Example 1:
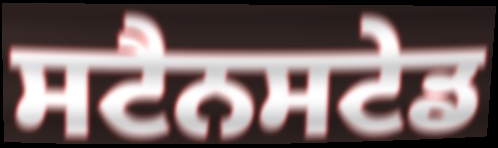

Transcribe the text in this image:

ਸਟੈਨਸਟੇਡ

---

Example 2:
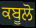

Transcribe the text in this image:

ਕਬੂਲੋ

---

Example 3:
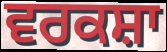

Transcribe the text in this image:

ਵਰਕਸ਼ਾ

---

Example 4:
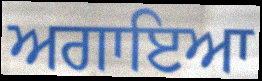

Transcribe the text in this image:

ਅਗਾਇਆ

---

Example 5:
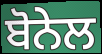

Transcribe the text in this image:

ਬੋਨੇਲ